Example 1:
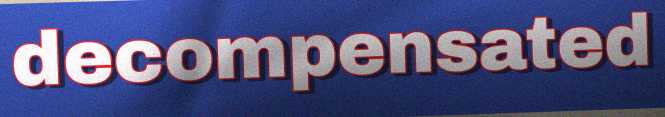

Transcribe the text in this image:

decompensated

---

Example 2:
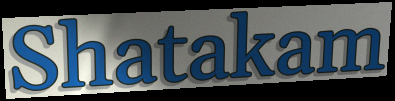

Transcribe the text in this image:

Shatakam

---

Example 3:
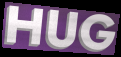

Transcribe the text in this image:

HUG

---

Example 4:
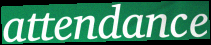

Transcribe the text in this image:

attendance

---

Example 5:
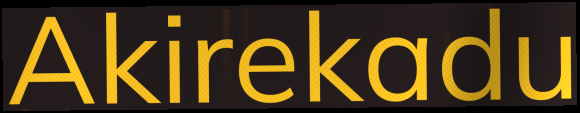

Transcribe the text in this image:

Akirekadu